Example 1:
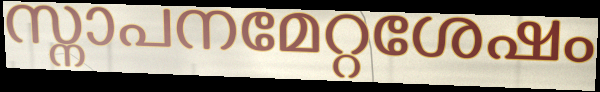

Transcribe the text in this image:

സ്നാപനമേറ്റശേഷം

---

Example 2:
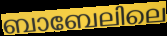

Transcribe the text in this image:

ബാബേലിലെ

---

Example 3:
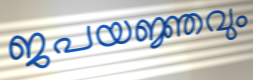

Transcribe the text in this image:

ജപയജ്ഞവും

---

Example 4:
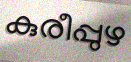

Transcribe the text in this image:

കുരീപ്പുഴ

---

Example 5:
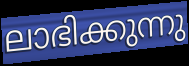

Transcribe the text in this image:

ലാഭിക്കുന്നു